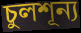
চুলশূন্য